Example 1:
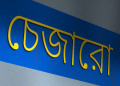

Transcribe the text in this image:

চেজারো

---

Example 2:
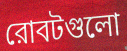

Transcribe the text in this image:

রোবটগুলো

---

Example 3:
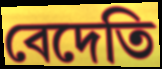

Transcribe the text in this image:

বেদেতি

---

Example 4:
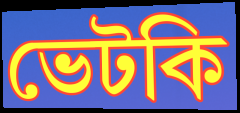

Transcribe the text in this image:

ভেটকি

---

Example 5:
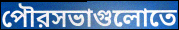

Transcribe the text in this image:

পৌরসভাগুলোতে